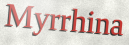
Myrrhina